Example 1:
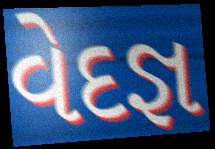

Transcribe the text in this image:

વેદજ્ઞ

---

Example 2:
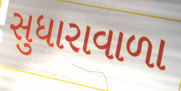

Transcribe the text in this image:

સુધારાવાળા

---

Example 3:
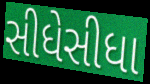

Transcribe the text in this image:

સીધેસીધા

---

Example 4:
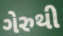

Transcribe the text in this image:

ગેરુથી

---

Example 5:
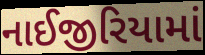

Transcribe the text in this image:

નાઈજીરિયામાં